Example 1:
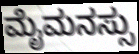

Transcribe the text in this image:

ಮೈಮನಸ್ಸು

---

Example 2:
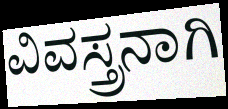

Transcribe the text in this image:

ವಿವಸ್ತ್ರನಾಗಿ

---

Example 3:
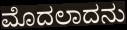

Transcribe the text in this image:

ಮೊದಲಾದನು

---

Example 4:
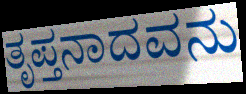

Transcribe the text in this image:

ತೃಪ್ತನಾದವನು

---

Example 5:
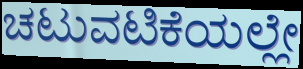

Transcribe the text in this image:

ಚಟುವಟಿಕೆಯಲ್ಲೇ